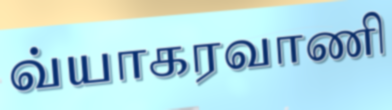
வ்யாகரவாணி